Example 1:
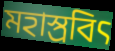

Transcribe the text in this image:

মহাস্ত্রবিৎ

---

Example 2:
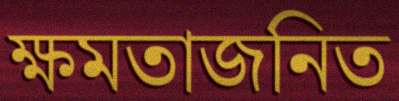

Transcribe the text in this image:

ক্ষমতাজনিত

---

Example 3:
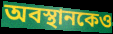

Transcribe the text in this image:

অবস্থানকেও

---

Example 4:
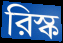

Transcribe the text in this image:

রিস্ক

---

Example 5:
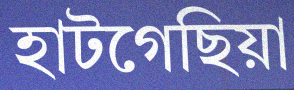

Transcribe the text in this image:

হাটগেছিয়া